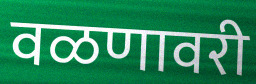
वळणावरी